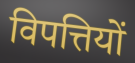
विपत्तियों